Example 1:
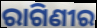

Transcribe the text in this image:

ରାଗିଣୀର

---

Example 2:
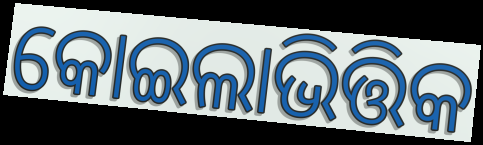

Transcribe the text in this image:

କୋଇଲାଭିତ୍ତିକ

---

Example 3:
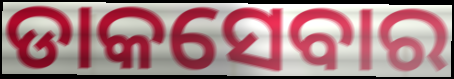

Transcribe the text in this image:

ଡାକସେବାର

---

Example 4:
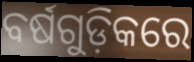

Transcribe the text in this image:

ବର୍ଷଗୁଡ଼ିକରେ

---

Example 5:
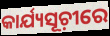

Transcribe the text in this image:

କାର୍ଯ୍ୟସୂଚ଼ୀରେ